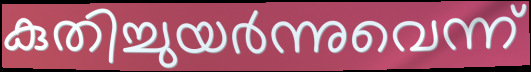
കുതിച്ചുയർന്നുവെന്ന്